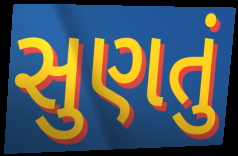
સુણતું